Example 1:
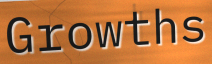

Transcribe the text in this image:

Growths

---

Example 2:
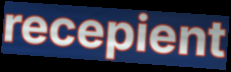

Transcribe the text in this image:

recepient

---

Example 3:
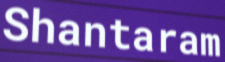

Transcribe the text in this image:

Shantaram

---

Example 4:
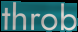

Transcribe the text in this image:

throb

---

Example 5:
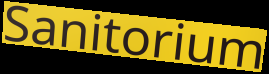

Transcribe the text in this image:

Sanitorium